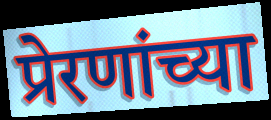
प्रेरणांच्या